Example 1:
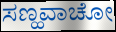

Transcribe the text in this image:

ಸಣ್ಹವಾಚೋ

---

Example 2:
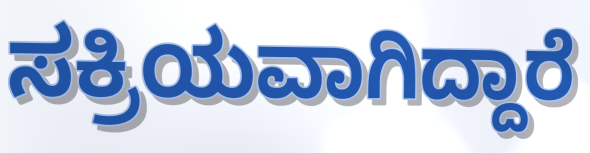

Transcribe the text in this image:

ಸಕ್ರಿಯವಾಗಿದ್ದಾರೆ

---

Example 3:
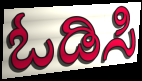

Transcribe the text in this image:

ಓಡಿಸಿ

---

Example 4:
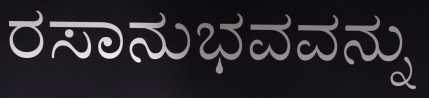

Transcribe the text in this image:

ರಸಾನುಭವವನ್ನು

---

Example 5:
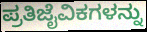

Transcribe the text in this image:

ಪ್ರತಿಜೈವಿಕಗಳನ್ನು